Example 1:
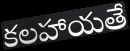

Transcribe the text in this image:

కలహాయతే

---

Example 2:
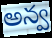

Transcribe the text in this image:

అన్వ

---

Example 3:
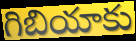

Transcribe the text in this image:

గిబియాకు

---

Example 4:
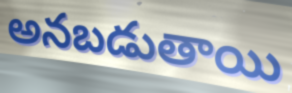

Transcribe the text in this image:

అనబడుతాయి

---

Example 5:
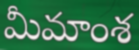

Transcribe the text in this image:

మీమాంశ